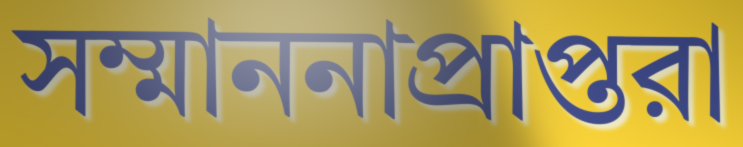
সম্মাননাপ্রাপ্তরা